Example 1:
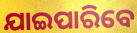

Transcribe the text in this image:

ଯାଇପାରିବେ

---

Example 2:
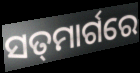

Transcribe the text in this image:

ସତ୍‌ମାର୍ଗରେ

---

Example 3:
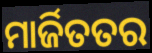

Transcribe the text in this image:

ମାର୍ଜିତତର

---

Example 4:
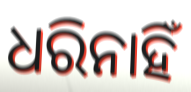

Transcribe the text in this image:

ଧରିନାହିଁ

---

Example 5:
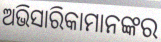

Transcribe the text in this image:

ଅଭିସାରିକାମାନଙ୍କର